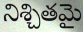
నిశ్చితమై